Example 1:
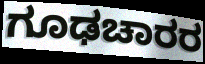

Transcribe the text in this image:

ಗೂಢಚಾರರ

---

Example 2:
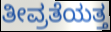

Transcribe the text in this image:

ತೀವ್ರತೆಯತ್ತ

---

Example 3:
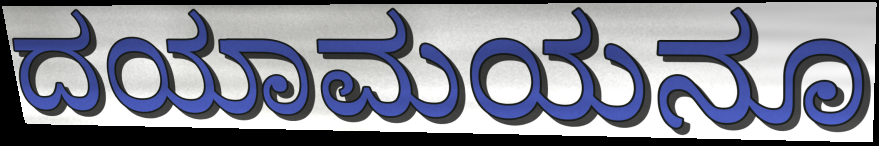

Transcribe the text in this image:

ದಯಾಮಯನೂ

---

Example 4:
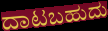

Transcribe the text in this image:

ದಾಟಬಹುದು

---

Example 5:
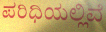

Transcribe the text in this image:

ಪರಿಧಿಯಲ್ಲಿವೆ